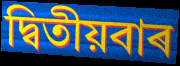
দ্বিতীয়বাৰ